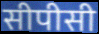
सीपीसी